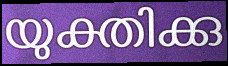
യുക്തിക്കു